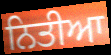
ਨਿਤੀਆ